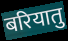
बरियातु